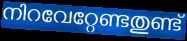
നിറവേറ്റേണ്ടതുണ്ട്